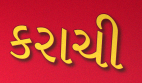
કરાચી